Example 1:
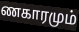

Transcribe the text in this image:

ணகாரமும்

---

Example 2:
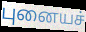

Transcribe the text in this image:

புனையச்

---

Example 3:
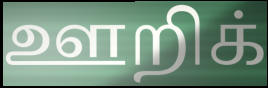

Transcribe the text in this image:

ஊறிக்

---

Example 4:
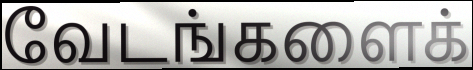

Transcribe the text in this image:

வேடங்களைக்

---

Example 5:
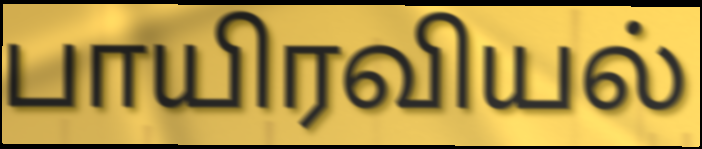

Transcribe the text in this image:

பாயிரவியல்